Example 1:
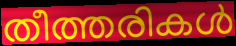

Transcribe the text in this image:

തീത്തരികൾ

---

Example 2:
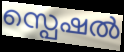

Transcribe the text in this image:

സ്പെഷൽ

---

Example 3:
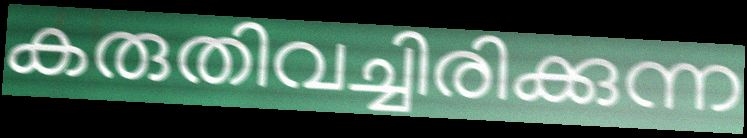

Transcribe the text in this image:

കരുതിവച്ചിരിക്കുന്ന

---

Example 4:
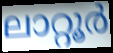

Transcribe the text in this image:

ലാറ്റൂർ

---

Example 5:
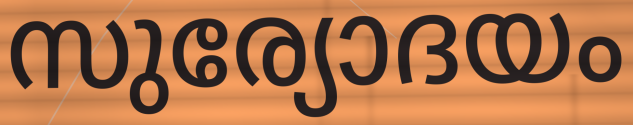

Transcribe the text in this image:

സുര്യോദയം